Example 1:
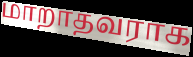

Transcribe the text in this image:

மாறாதவராக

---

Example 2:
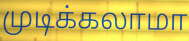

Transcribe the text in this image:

முடிக்கலாமா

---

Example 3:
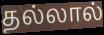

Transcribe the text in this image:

தல்லால்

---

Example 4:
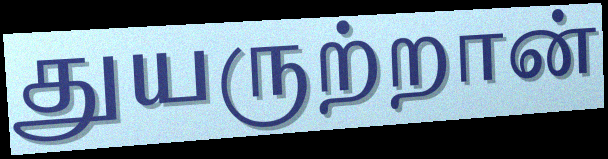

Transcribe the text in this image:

துயருற்றான்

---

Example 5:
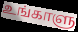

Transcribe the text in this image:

உங்காளு